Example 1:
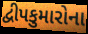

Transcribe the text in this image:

દ્વીપકુમારોના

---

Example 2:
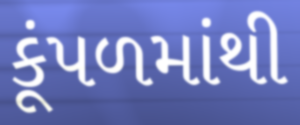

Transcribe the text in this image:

કૂંપળમાંથી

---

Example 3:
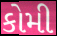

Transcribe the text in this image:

કોમી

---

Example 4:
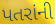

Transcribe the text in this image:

પતરાંની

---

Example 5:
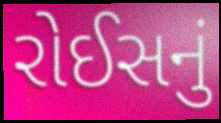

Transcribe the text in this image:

રોઈસનું